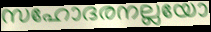
സഹോദരനല്ലയോ